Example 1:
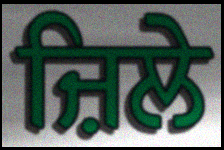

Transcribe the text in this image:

ਜ਼ਿਲੇ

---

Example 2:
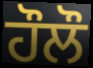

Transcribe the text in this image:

ਹੌਲੌ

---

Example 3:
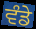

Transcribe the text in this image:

ਵੰਡੇ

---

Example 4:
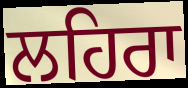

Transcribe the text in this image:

ਲਹਿਰਾ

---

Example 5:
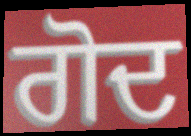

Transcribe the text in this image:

ਗੋਦ